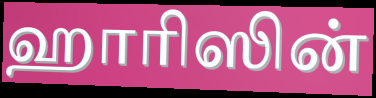
ஹாரிஸின்